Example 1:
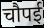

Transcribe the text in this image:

चौपई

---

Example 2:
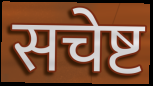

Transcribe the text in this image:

सचेष्ट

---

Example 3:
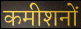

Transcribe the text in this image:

कमीशनों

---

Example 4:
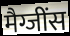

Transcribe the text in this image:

मैग्जींस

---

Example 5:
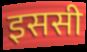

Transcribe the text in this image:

इससी